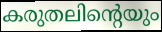
കരുതലിന്റെയും